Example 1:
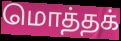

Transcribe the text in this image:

மொத்தக்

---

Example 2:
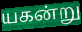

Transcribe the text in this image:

யகன்று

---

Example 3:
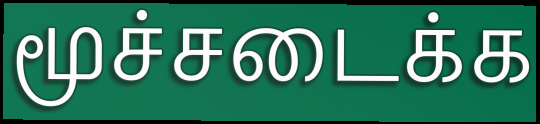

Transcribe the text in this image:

மூச்சடைக்க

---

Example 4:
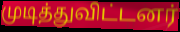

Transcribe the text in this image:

முடித்துவிட்டனர்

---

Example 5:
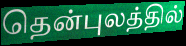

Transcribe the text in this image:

தென்புலத்தில்